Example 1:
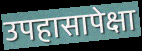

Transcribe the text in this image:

उपहासापेक्षा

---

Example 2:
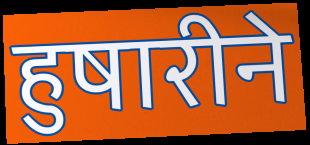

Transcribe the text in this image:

हुषारीने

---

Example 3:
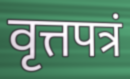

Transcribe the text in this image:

वृत्तपत्रं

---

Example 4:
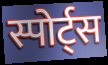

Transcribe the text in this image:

स्पोर्ट्स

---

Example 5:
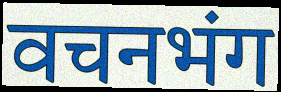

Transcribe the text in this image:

वचनभंग